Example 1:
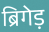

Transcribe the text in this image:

ब्रिगेड़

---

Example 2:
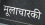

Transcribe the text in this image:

मूलाचारकी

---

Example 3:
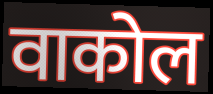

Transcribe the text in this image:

वाकोल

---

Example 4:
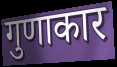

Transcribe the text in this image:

गुणाकार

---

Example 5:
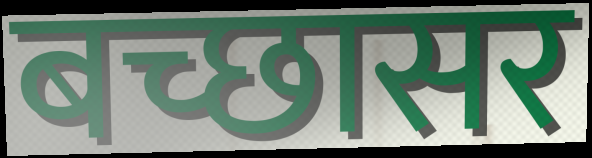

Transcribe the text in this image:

बच्छासर